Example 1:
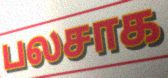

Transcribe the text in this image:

பலசாக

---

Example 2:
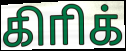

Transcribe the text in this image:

கிரிக்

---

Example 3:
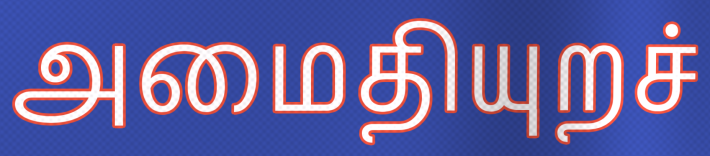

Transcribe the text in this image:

அமைதியுறச்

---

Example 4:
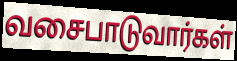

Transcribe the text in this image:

வசைபாடுவார்கள்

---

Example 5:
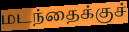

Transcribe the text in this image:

மடந்தைக்குச்